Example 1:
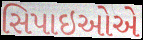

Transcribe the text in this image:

સિપાઇઓએ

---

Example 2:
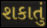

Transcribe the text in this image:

શકાતું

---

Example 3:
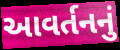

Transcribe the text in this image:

આવર્તનનું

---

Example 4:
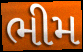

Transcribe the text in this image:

ભીમ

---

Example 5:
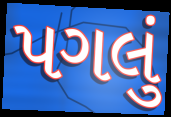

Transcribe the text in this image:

પગલું